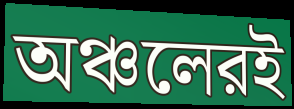
অঞ্চলেরই